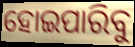
ହୋଇପାରିବୁ